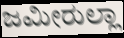
ಜಮೀರುಲ್ಲಾ